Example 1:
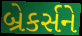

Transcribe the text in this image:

બ્રેકર્સને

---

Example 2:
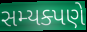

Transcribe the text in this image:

સમ્યક્પણે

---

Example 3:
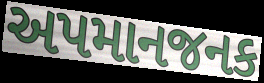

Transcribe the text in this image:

અપમાનજનક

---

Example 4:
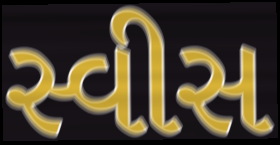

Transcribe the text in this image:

સ્વીસ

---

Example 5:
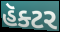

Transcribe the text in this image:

હૅક્ટર